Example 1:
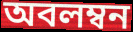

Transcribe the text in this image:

অবলম্বন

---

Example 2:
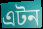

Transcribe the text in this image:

এটন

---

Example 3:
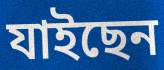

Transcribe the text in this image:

যাইছেন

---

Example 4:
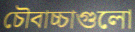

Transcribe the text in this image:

চৌবাচ্চাগুলো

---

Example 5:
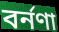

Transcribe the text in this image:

বর্নণা